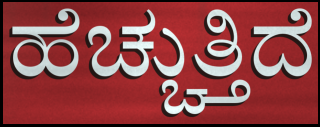
ಹೆಚ್ಚುತ್ತಿದೆ